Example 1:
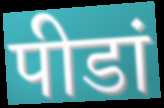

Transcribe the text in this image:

पीडां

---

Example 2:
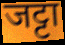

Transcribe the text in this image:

जट्टा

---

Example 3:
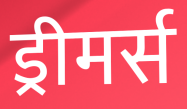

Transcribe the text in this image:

ड्रीमर्स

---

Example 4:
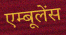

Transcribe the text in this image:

एम्बूलेंस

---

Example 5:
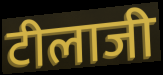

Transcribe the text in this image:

टीलाजी